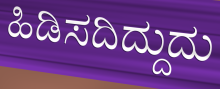
ಹಿಡಿಸದಿದ್ದುದು